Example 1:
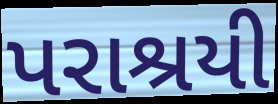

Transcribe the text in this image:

પરાશ્રયી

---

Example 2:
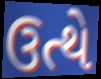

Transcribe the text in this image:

ઉત્થે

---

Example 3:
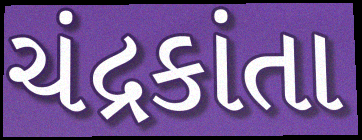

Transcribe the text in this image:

ચંદ્રકાંતા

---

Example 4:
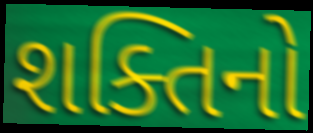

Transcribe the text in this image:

શક્તિનો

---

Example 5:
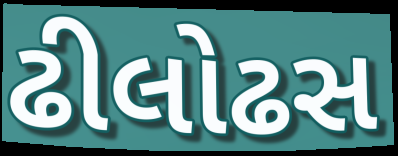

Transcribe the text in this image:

ઢીલોઢસ